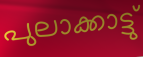
പുലാക്കാട്ടു്